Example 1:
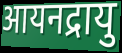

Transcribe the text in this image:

आयनद्रायु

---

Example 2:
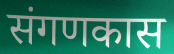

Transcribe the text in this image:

संगणकास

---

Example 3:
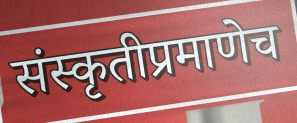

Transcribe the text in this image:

संस्कृतीप्रमाणेच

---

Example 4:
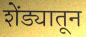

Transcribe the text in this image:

शेंड्यातून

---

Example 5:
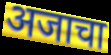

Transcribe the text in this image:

अजाचा